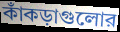
কাঁকড়াগুলোর